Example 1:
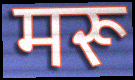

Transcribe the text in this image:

मरू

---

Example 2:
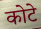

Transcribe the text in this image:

कोटे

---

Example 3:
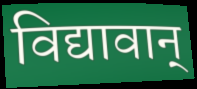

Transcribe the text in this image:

विद्यावान्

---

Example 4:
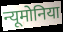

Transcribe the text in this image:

न्यूमोनिया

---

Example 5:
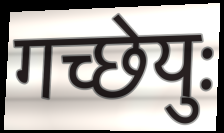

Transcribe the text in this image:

गच्छेयुः